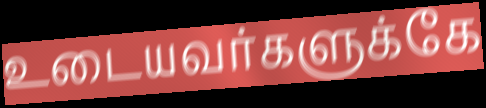
உடையவர்களுக்கே